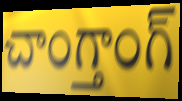
చాంగ్తాంగ్